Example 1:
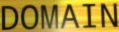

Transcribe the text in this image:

DOMAIN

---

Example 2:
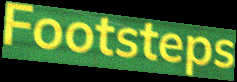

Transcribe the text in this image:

Footsteps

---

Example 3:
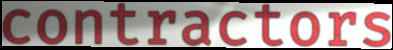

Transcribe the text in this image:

contractors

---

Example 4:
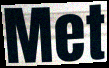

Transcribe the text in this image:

Met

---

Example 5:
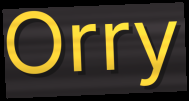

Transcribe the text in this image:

Orry